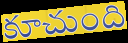
కూచుంది